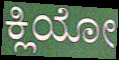
ಕ್ಲಿಯೋ